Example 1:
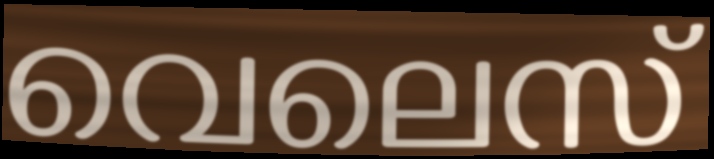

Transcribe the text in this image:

വെലെസ്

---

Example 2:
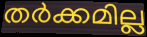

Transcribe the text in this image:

തർക്കമില്ല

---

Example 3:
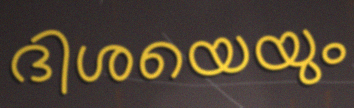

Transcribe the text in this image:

ദിശയെയും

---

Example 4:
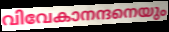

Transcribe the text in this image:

വിവേകാനന്ദനെയും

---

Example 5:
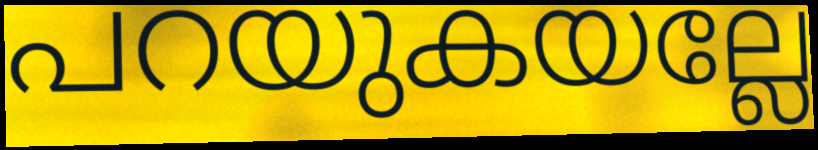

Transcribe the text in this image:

പറയുകയല്ലേ